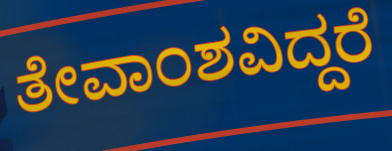
ತೇವಾಂಶವಿದ್ದರೆ